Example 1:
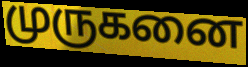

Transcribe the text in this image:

முருகனை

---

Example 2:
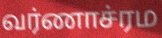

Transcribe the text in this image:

வர்ணாச்ரம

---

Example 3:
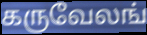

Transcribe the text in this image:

கருவேலங்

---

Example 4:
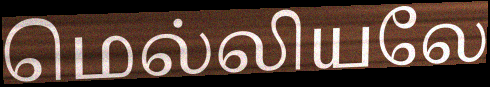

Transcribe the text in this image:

மெல்லியலே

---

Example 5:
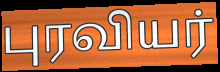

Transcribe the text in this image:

புரவியர்